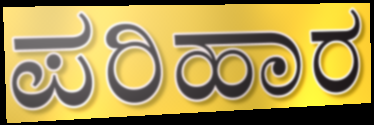
ಪರಿಹಾರ